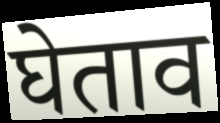
घेताव